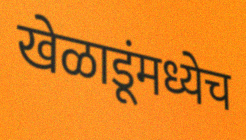
खेळाडूंमध्येच